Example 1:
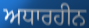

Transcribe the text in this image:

ਅਧਾਰਹੀਨ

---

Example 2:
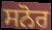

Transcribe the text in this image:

ਸਨੋਰ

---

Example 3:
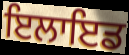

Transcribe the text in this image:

ਇਲਾਇਡ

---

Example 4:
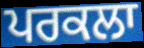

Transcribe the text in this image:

ਪਰਕਲਾ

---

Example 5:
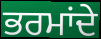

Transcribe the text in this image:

ਭਰਮਾਂਦੇ